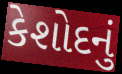
કેશોદનું